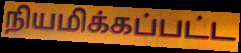
நியமிக்கப்பட்ட